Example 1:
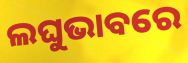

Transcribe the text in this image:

ଲଘୁଭାବରେ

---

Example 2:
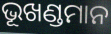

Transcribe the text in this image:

ଭୂଖଣ୍ଡମାନ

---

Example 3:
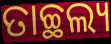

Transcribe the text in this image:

ତାଚ୍ଛଲ୍ଯ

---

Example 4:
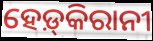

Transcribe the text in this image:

ହେଡ଼୍‌କିରାନୀ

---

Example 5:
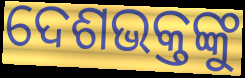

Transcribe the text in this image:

ଦେଶଭକ୍ତଙ୍କୁ